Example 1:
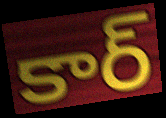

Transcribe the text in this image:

కార్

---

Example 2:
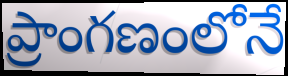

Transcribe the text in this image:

ప్రాంగణంలోనే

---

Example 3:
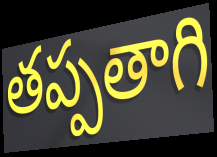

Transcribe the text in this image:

తప్పతాగి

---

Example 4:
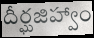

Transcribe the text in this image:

దీర్ఘజిహ్వాం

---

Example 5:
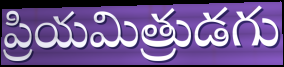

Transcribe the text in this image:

ప్రియమిత్రుడగు